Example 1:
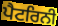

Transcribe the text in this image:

ਪੈਟਰਿਨੀ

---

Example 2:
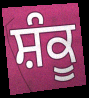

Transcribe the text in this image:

ਸ਼ੰਕੂ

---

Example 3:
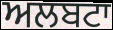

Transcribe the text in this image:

ਅਲਬਟਾ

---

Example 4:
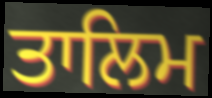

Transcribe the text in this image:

ਤਾਲਿਮ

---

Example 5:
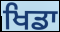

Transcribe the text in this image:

ਖਿਡਾ